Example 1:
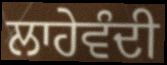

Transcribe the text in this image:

ਲਾਹੇਵੰਦੀ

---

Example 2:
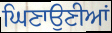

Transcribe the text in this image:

ਘਿਣਾਉਣੀਆਂ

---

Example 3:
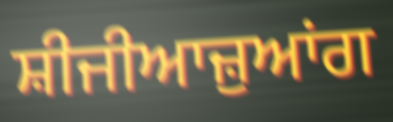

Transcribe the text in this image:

ਸ਼ੀਜੀਆਜ਼ੁਆਂਗ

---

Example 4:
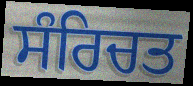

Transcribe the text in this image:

ਸੰਰਿਚਤ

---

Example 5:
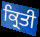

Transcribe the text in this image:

ਕ੍ਰਿਤੀ